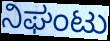
ನಿಘಂಟು